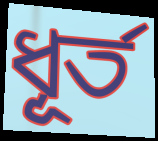
ধূৰ্ত